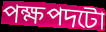
পক্ষপদটো